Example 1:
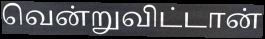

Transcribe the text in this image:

வென்றுவிட்டான்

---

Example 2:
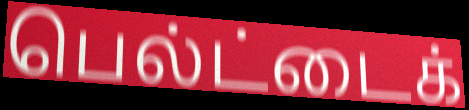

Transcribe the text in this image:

பெல்ட்டைக்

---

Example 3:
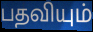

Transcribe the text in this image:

பதவியும்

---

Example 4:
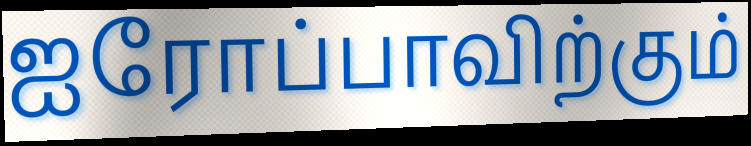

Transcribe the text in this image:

ஐரோப்பாவிற்கும்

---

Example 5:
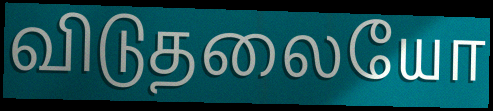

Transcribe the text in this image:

விடுதலையோ